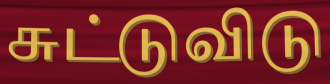
சுட்டுவிடு